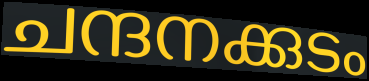
ചന്ദനക്കുടം